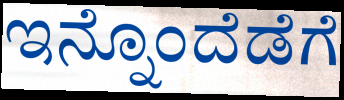
ಇನ್ನೊಂದೆಡೆಗೆ